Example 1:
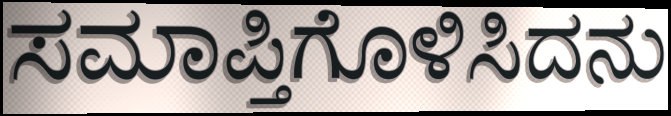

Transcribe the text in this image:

ಸಮಾಪ್ತಿಗೊಳಿಸಿದನು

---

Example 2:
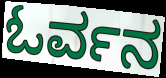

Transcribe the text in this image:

ಓರ್ವನ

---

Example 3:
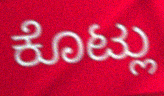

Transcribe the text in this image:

ಕೊಟ್ಲು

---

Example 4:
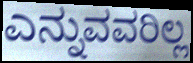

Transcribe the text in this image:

ಎನ್ನುವವರಿಲ್ಲ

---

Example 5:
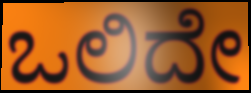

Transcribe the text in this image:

ಒಲಿದೇ